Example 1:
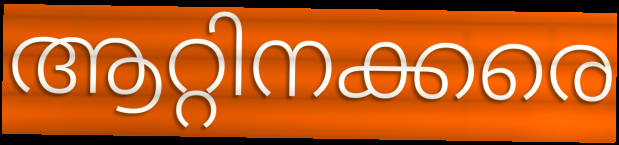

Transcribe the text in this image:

ആറ്റിനക്കരെ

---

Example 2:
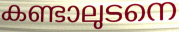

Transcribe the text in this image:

കണ്ടാലുടനെ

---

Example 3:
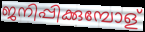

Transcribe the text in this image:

ജനിപ്പിക്കുമ്പോള്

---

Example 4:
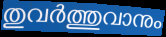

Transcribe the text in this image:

തുവർത്തുവാനും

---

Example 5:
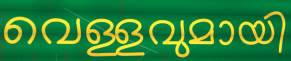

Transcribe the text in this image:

വെള്ളവുമായി